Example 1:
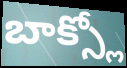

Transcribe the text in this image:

బాక్స్లో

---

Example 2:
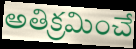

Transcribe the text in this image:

అతిక్రమించే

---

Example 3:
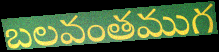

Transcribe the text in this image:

బలవంతముగ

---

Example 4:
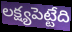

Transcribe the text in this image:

లక్ష్యపెట్టేది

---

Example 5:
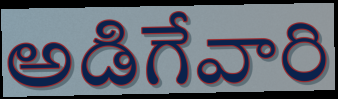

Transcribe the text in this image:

అడిగేవారి